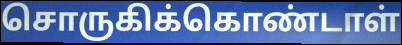
சொருகிக்கொண்டாள்